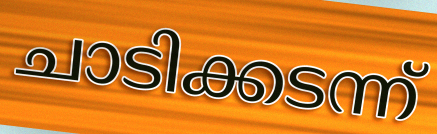
ചാടിക്കടന്ന്